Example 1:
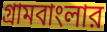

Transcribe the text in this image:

গ্রামবাংলার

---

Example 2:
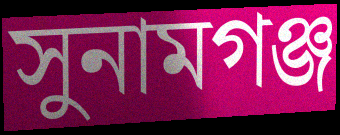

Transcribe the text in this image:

সুনামগঞ্জ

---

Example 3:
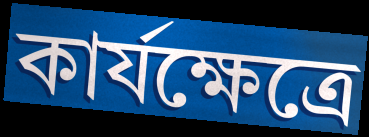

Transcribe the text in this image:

কার্যক্ষেত্রে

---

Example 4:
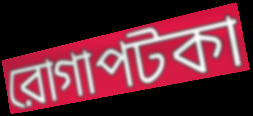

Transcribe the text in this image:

রোগাপটকা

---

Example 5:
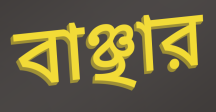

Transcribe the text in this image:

বাঞ্ছার